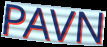
PAVN